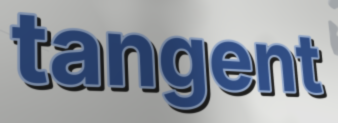
tangent